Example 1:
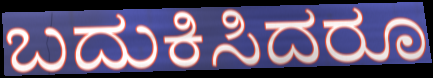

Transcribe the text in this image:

ಬದುಕಿಸಿದರೂ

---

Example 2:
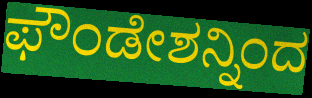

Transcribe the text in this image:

ಫೌಂಡೇಶನ್ನಿಂದ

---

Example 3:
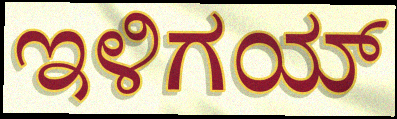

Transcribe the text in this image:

ಇಳಿಗಯ್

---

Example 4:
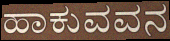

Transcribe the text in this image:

ಹಾಕುವವನ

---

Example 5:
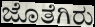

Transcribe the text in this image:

ಜೊತೆಗಿರು